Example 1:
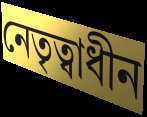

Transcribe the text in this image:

নেতৃত্বাধীন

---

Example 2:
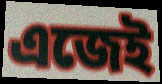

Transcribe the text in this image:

এজেই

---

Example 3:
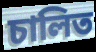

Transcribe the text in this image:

চালিত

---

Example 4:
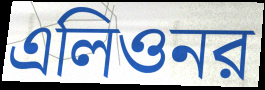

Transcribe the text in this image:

এলিওনর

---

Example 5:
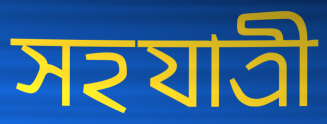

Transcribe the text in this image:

সহযাত্রী